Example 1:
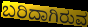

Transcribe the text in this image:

ಬರಿದಾಗಿರುವ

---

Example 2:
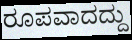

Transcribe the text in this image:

ರೂಪವಾದದ್ದು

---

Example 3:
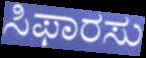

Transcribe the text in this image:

ಸಿಫಾರಸು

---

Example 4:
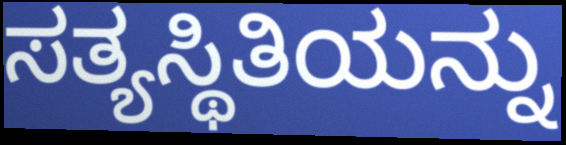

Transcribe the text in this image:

ಸತ್ಯಸ್ಥಿತಿಯನ್ನು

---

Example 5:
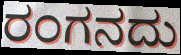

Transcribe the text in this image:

ರಂಗನದು